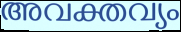
അവക്തവ്യം